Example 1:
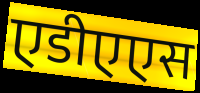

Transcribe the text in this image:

एडीएएस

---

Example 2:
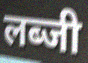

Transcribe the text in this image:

लब्जी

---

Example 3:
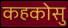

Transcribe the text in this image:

कहकोसु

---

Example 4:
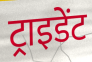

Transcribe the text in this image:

ट्राइडेंट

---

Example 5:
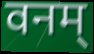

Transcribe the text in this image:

वनम्